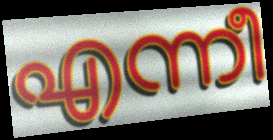
എന്നീ